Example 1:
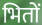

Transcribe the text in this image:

भितों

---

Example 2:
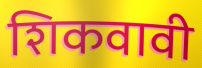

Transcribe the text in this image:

शिकवावी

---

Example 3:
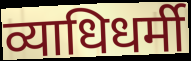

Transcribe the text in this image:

व्याधिधर्मी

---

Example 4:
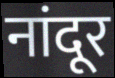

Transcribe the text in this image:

नांदूर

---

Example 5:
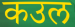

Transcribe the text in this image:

कउल